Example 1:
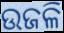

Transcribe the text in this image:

ଉଜଳି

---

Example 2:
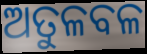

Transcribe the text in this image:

ଅତୁଳବଳ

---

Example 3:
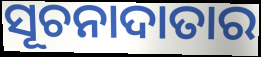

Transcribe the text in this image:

ସୂଚନାଦାତାର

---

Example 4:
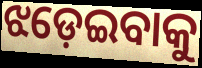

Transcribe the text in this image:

ଝଡ଼େଇବାକୁ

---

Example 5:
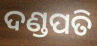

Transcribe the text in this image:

ଦଣ୍ଡପତି